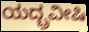
ಯದ್ಬ್ರವೀಷಿ